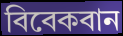
বিবেকবান